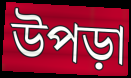
উপড়া